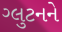
ગ્લુટનને